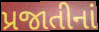
પ્રજાતીનાં